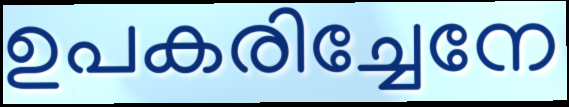
ഉപകരിച്ചേനേ